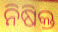
ନିଷିକ୍ତ